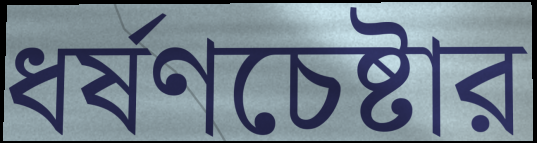
ধর্ষণচেষ্টার